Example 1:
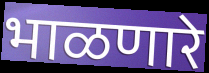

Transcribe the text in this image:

भाळणारे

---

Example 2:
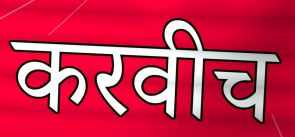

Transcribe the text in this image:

करवीच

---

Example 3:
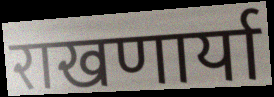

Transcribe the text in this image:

राखणार्या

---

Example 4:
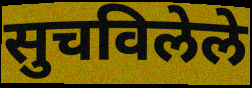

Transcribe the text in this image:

सुचविलेले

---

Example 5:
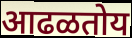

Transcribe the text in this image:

आढळतोय